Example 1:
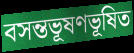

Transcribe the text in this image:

বসন্তভূষণভূষিত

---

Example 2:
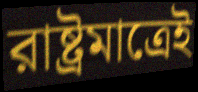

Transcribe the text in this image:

রাষ্ট্রমাত্রেই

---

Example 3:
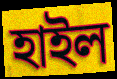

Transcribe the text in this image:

হাইল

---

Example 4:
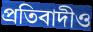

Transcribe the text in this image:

প্রতিবাদীও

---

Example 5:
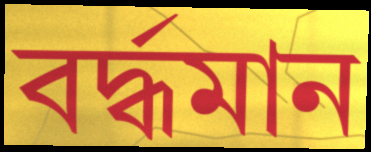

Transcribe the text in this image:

বর্দ্ধমান